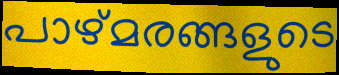
പാഴ്മരങ്ങളുടെ